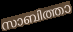
സാബിത്താ